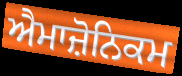
ਐਮਾਜ਼ੋਨਿਕਮ